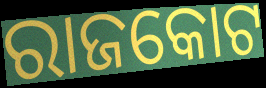
ରାଜକୋଟ